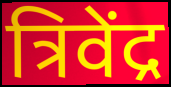
त्रिवेंद्र